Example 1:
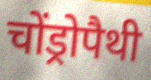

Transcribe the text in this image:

चोंड्रोपैथी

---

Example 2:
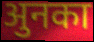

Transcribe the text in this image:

अुनका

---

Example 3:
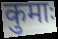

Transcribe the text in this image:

कुमाः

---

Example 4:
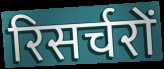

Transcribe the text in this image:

रिसर्चरों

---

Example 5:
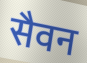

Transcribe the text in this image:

सैवन